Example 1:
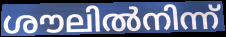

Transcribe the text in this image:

ശൗലിൽനിന്ന്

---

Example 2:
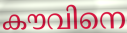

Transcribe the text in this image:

കൗവിനെ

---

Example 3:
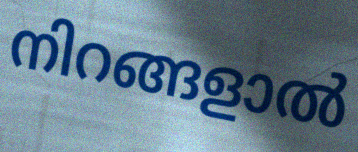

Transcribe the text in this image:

നിറങ്ങളാൽ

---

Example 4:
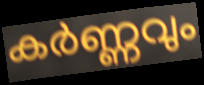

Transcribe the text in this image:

കർണ്ണവും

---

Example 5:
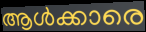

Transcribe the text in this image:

ആൾക്കാരെ